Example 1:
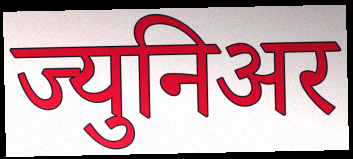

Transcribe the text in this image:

ज्युनिअर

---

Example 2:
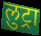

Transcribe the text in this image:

लुट्रा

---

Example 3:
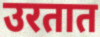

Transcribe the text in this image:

उरतात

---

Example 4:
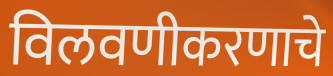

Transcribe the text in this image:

विलवणीकरणाचे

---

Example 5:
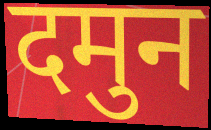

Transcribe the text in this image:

दमुन